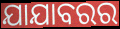
ଯାଯାବରର